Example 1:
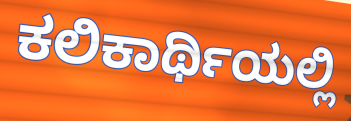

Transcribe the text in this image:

ಕಲಿಕಾರ್ಥಿಯಲ್ಲಿ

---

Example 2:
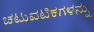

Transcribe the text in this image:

ಚಟುವಟಿಕಗಳನ್ನು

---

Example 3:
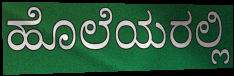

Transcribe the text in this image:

ಹೊಲೆಯರಲ್ಲಿ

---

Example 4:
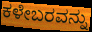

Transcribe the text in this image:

ಕಳೇಬರವನ್ನು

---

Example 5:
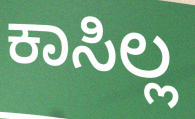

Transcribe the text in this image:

ಕಾಸಿಲ್ಲ